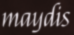
maydis